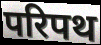
परिपथ